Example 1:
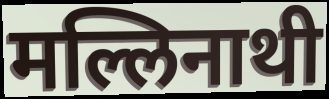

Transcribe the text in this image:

मल्लिनाथी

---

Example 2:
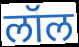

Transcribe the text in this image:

लॉल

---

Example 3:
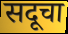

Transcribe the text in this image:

सदूचा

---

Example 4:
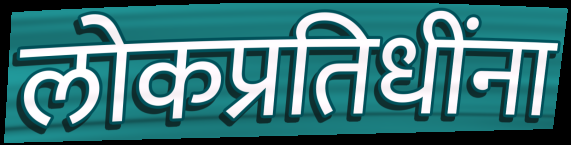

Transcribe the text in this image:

लोकप्रतिधींना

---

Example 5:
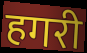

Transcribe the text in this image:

हगरी